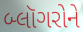
બ્લૉગરોને